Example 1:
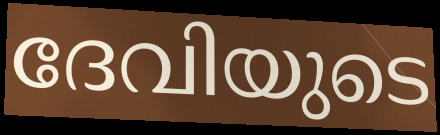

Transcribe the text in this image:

ദേവിയുടെ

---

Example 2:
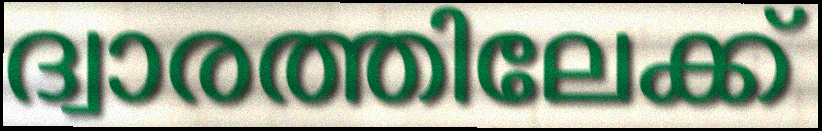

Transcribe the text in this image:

ദ്വാരത്തിലേക്ക്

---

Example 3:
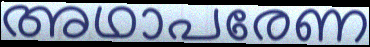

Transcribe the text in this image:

അഥാപരേണ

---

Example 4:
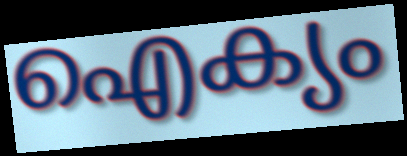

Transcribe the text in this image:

ഐക്യം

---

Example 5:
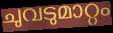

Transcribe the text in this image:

ചുവടുമാറ്റം